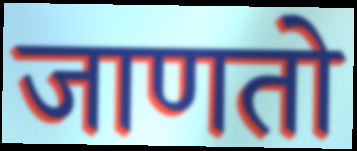
जाणतो